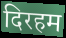
दिरहम